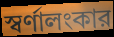
স্বর্ণালংকার